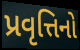
પ્રવૃત્તિનો